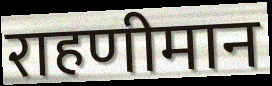
राहणीमान